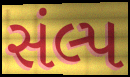
સંલ્પ